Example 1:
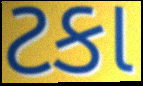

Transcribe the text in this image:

ટકા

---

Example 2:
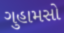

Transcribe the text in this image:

ગુહામસો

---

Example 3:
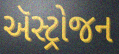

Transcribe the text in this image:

ઍસ્ટ્રોજન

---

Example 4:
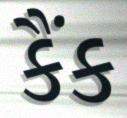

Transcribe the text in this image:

કૈંક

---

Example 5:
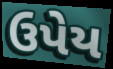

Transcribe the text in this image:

ઉપેય